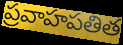
ప్రవాహపతిత